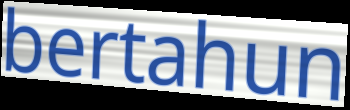
bertahun